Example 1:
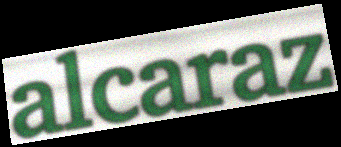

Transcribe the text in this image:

alcaraz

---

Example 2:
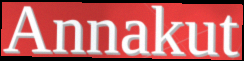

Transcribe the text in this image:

Annakut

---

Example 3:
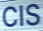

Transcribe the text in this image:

CIS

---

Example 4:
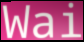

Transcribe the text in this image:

Wai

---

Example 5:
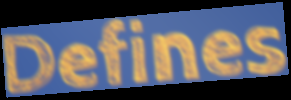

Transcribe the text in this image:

Defines